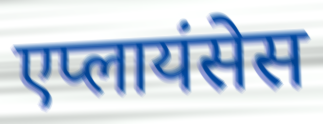
एप्लायंसेस